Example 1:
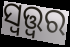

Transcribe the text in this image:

ସ୍ୱତ୍ତ୍ୱର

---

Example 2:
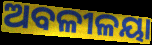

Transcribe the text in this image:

ଅବଳୀଳୟା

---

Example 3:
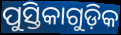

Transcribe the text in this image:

ପୁସ୍ତିକାଗୁଡ଼ିକ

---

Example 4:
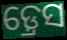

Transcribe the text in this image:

ଡ଼୍ରେସ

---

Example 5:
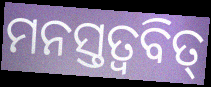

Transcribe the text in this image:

ମନସ୍ତତ୍ଵବିତ୍